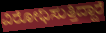
ವಿರೋಧಿಸುತ್ತಿದ್ದಾರೆ